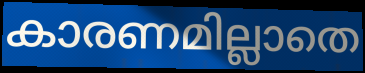
കാരണമില്ലാതെ